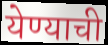
येण्याची